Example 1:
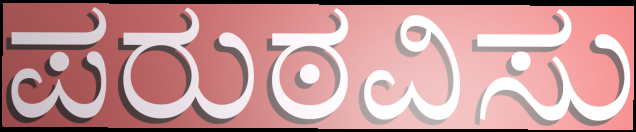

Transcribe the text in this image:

ಪರುಠವಿಸು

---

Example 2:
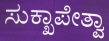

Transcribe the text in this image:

ಸುಕ್ಖಾಪೇತ್ವಾ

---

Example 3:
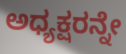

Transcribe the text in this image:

ಅಧ್ಯಕ್ಷರನ್ನೇ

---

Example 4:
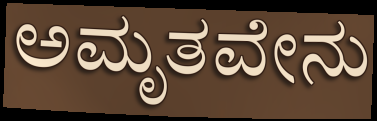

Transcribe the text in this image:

ಅಮೃತವೇನು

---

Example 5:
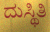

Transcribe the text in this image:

ದುಸ್ಥಿತಿ